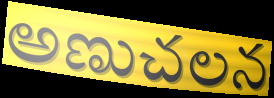
అణుచలన